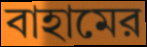
বাহামের